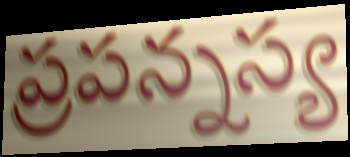
ప్రపన్నస్య